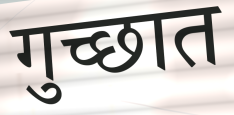
गुच्छात